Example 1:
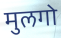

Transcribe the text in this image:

मुलगो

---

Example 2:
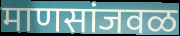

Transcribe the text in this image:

माणसांजवळ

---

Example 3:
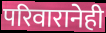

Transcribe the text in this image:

परिवारानेही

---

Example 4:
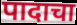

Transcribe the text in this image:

पादाचा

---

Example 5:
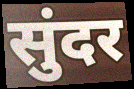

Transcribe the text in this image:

सुंदर